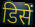
डिसें